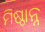
ମିଷ୍ଠାନ୍ନ